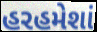
હરહમેશાં